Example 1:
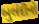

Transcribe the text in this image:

બુલંદીનો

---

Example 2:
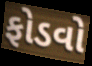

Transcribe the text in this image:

ફોડવો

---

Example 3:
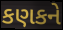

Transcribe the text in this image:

કણકને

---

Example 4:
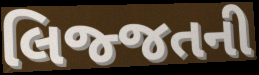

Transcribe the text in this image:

લિજ્જતની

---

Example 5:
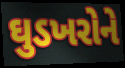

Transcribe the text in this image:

ઘુડખરોને